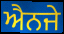
ਐਨਜੇ